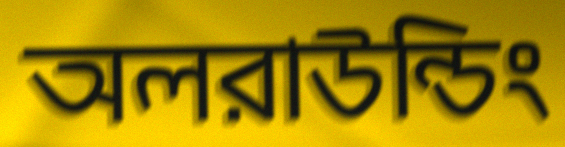
অলরাউন্ডিং